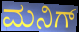
ಮನಿಗ್